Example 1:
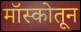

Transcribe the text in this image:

मॉस्कोतून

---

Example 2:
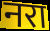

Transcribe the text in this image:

नरा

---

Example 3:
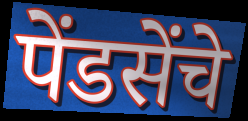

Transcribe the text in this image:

पेंडसेंचे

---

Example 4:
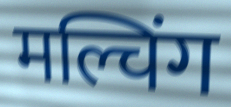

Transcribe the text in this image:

मल्चिंग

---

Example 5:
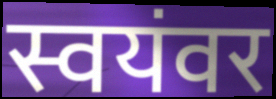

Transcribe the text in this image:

स्वयंवर